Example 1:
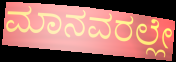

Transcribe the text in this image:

ಮಾನವರಲ್ಲೇ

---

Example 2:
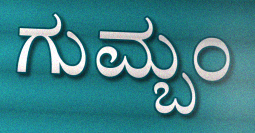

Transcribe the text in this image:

ಗುಮ್ಬಂ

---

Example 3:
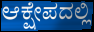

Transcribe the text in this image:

ಆಕ್ಷೇಪದಲ್ಲಿ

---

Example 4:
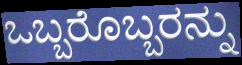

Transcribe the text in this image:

ಒಬ್ಬರೊಬ್ಬರನ್ನು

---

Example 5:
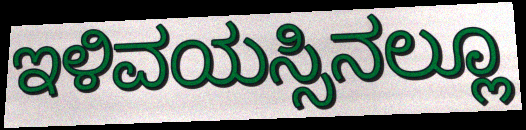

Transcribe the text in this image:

ಇಳಿವಯಸ್ಸಿನಲ್ಲೂ